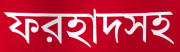
ফরহাদসহ